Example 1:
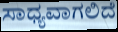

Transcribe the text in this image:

ಸಾಧ್ಯವಾಗಲಿದೆ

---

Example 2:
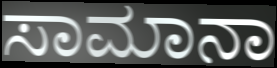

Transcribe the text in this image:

ಸಾಮಾನಾ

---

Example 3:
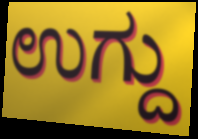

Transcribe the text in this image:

ಉಗ್ದು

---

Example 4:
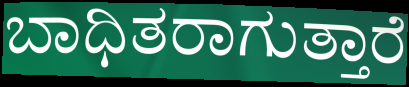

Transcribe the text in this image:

ಬಾಧಿತರಾಗುತ್ತಾರೆ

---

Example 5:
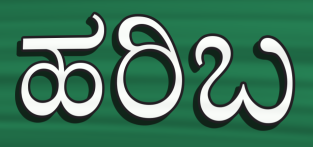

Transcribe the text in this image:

ಹರಿಬ